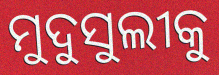
ମୁଦୁସୁଲୀକୁ